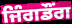
ਜਿੰਗਡੌਂਗ